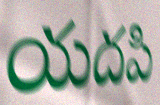
యదపి